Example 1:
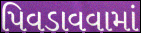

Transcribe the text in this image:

પિવડાવવામાં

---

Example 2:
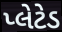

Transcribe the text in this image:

પ્લેટેડ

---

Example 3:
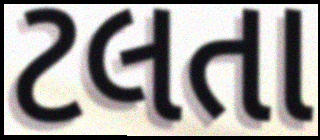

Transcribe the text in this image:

ટલતા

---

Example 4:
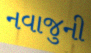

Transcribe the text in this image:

નવાજુની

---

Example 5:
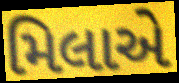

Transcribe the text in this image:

મિલાએ